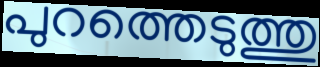
പുറത്തെടുത്തു